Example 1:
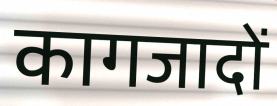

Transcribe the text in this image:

कागजादों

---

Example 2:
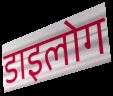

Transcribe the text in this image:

डाइलोग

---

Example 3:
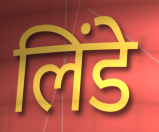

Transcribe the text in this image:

लिंडे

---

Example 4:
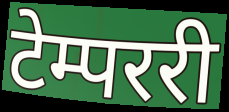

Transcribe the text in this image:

टेम्पररी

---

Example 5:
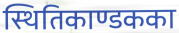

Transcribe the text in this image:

स्थितिकाण्डकका